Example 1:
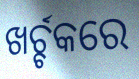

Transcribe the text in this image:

ଖର୍ଚ୍ଚକରେ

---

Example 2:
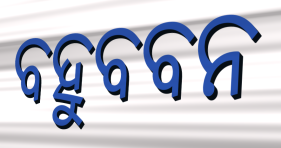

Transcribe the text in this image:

ବହୁବବନ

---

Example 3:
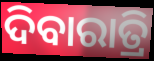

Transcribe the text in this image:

ଦିବାରାତ୍ରି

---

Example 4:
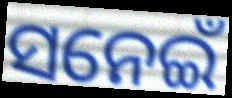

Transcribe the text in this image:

ସନେଇଁ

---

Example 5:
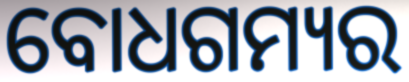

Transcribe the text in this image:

ବୋଧଗମ୍ୟର